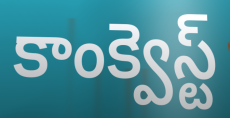
కాంక్వెస్ట్